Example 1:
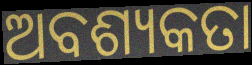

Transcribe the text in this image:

ଅବଶ୍ୟକତା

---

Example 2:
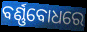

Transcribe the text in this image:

ବର୍ଣ୍ଣବୋଧରେ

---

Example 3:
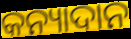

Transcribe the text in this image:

କନ୍ୟାଦାନ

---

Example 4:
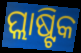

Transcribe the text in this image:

ପ୍ଲାଷ୍ଟିକ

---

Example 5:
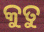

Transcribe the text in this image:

କୁତୁ